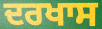
ਦਰਖਾਸ